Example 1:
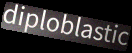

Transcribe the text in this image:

diploblastic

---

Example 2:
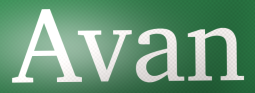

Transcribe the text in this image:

Avan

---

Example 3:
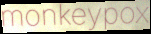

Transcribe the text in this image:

monkeypox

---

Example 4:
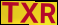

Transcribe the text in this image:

TXR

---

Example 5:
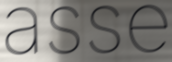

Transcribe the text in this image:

asse